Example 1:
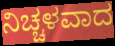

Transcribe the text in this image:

ನಿಚ್ಚಳವಾದ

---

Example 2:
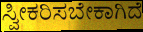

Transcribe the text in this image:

ಸ್ವೀಕರಿಸಬೇಕಾಗಿದೆ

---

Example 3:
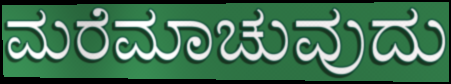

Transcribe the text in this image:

ಮರೆಮಾಚುವುದು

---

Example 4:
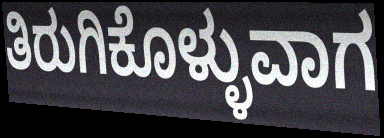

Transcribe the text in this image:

ತಿರುಗಿಕೊಳ್ಳುವಾಗ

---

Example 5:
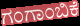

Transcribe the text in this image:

ಗಂಗಾಂಬಿಕೆ